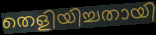
തെളിയിച്ചതായി